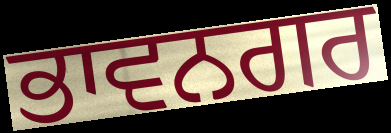
ਭਾਵਨਗਰ